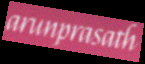
arunprasath